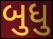
બુધુ